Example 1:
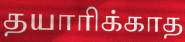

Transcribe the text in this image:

தயாரிக்காத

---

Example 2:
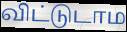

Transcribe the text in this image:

விட்டுடாம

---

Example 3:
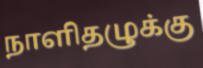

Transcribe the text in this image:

நாளிதழுக்கு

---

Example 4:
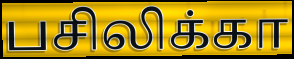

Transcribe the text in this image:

பசிலிக்கா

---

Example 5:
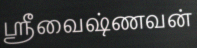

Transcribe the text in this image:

ஸ்ரீவைஷ்ணவன்